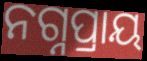
ନଗ୍ନପ୍ରାୟ